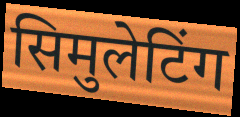
सिमुलेटिंग